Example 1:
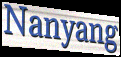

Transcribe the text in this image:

Nanyang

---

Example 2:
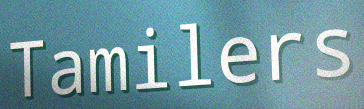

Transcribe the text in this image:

Tamilers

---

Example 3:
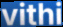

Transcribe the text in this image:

vithi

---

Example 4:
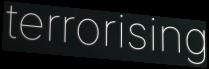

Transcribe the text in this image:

terrorising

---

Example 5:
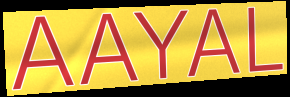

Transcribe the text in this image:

AAYAL